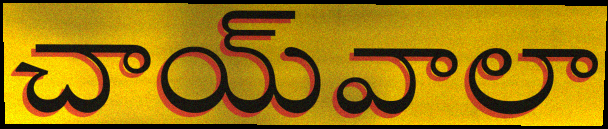
చాయ్‌వాలా